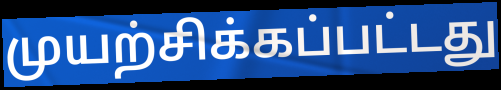
முயற்சிக்கப்பட்டது